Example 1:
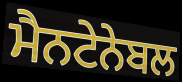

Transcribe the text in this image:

ਮੈਨਟੇਨੇਬਲ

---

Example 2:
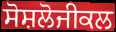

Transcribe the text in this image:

ਸੋਸ਼ਲੋਜੀਕਲ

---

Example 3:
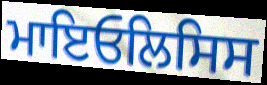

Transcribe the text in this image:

ਮਾਇਓਲਿਸਿਸ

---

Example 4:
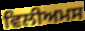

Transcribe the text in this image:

ਵਿਲੀਅਮਸ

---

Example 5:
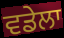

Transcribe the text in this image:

ਵਡੇਲਾ